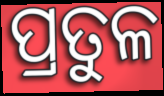
ପ୍ରତୁଳ